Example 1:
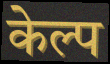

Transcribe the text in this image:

केल्प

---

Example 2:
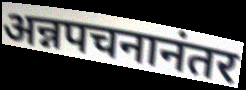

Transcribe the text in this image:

अन्नपचनानंतर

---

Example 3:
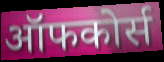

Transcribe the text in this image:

ऑफकोर्स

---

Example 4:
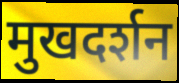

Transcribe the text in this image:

मुखदर्शन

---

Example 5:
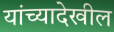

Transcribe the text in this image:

यांच्यादेखील